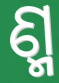
ଣ୍ମ